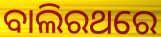
ବାଲିରଥରେ